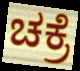
ಚಕ್ರೆ